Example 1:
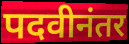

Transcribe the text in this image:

पदवीनंतर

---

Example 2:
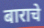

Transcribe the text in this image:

बाराचे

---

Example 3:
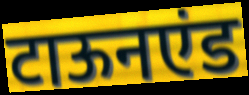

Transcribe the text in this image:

टाऊनएंड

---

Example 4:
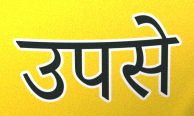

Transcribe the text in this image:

उपसे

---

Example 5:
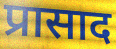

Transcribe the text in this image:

प्रासाद